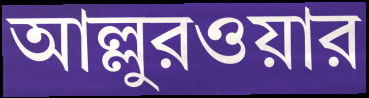
আল্লুরওয়ার